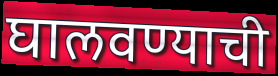
घालवण्याची